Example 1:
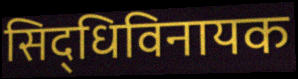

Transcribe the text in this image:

सिद्धिविनायक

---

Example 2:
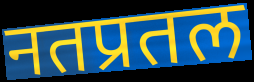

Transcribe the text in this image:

नतप्रतल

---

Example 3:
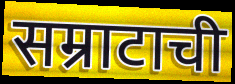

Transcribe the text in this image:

सम्राटाची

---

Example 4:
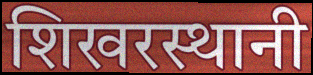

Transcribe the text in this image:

शिखरस्थानी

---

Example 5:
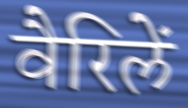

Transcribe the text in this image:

वैरिलें